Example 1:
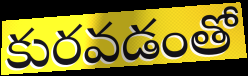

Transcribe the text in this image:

కురవడంతో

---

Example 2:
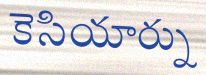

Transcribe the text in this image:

కెసియార్ను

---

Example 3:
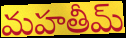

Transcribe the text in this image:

మహతీమ్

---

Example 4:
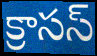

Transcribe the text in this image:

క్రాసస్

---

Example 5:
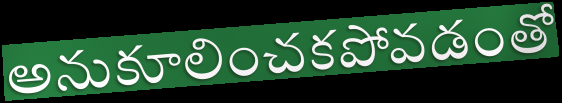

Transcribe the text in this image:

అనుకూలించకపోవడంతో